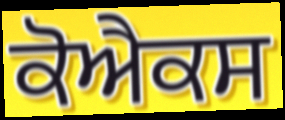
ਕੋਐਕਸ